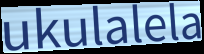
ukulalela